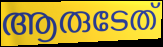
ആരുടേത്